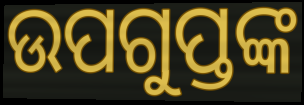
ଉପଗୁପ୍ତଙ୍କ